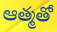
ఆత్మతో